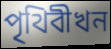
পৃথিবীখন